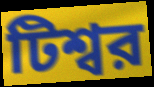
টিশ্বর